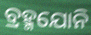
ବ୍ରହ୍ମଯୋନି